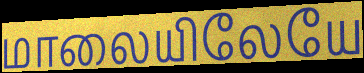
மாலையிலேயே